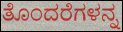
ತೊಂದರೆಗಳನ್ನ